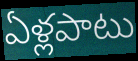
ఏళ్లపాటు